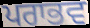
ਪਰਾਭਵ